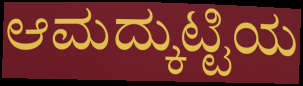
ಆಮದ್ಕುಟ್ಟಿಯ